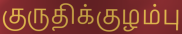
குருதிக்குழம்பு